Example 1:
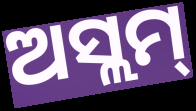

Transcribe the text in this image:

ଅସ୍ଲମ୍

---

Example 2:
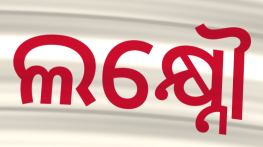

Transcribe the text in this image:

ଲକ୍ଷ୍ନୌ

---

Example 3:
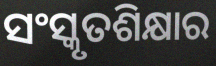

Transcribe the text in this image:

ସଂସ୍କୃତଶିକ୍ଷାର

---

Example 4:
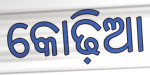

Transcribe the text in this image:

କୋଢ଼ିଆ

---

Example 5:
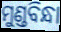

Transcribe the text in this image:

ମୁଣ୍ଡବିନ୍ଧା